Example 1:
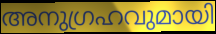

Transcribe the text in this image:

അനുഗ്രഹവുമായി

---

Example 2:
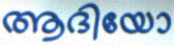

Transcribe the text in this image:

ആദിയോ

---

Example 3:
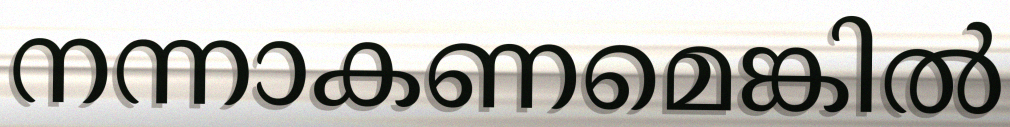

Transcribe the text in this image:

നന്നാകണമെങ്കിൽ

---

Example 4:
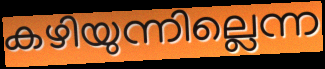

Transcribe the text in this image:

കഴിയുന്നില്ലെന്ന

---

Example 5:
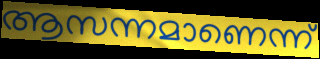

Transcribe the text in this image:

ആസന്നമാണെന്ന്